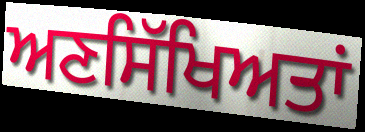
ਅਣਸਿੱਖਿਅਤਾਂ